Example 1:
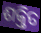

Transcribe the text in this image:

ଶକ୍ତିତ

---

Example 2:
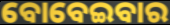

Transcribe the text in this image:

ବୋବେଇବାର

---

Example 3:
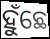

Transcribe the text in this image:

ହୁଁଛେ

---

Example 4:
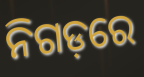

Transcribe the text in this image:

ନିଗଡ଼ରେ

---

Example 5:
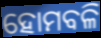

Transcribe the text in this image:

ହୋମବଳି